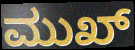
ಮುಖ್